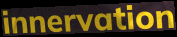
innervation